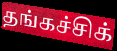
தங்கச்சிக்